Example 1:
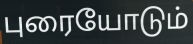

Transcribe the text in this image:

புரையோடும்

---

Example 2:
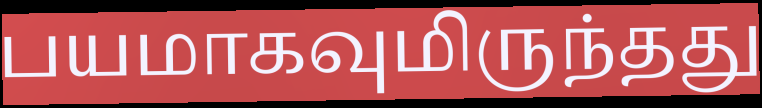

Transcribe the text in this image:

பயமாகவுமிருந்தது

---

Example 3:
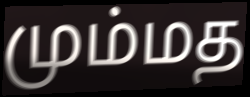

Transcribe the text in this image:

மும்மத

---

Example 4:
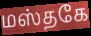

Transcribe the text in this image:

மஸ்தகே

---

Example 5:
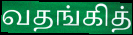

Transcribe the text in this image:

வதங்கித்